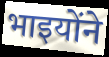
भाइयोंने